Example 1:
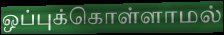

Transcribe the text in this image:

ஒப்புக்கொள்ளாமல்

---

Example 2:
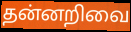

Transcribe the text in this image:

தன்னறிவை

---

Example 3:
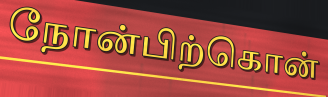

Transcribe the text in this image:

நோன்பிற்கொன்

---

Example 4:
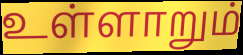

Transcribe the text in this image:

உள்ளாறும்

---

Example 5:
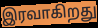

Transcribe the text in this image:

இரவாகிறது